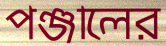
পঞ্জালের